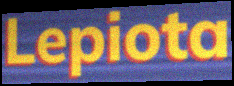
Lepiota